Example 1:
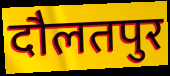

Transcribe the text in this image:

दौलतपुर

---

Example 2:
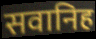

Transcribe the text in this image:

सवानिह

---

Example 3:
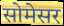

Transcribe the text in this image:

सोमेसर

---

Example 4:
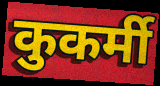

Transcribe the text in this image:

कुकर्मी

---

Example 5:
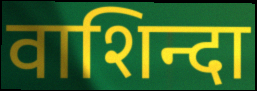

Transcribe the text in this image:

वाशिन्दा